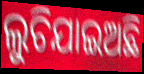
ଲୁଚିଯାଇଅଛି